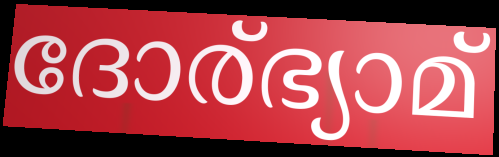
ദോര്ഭ്യാമ്